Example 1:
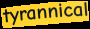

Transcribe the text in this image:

tyrannical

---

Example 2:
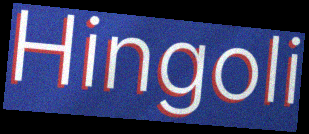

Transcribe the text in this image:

Hingoli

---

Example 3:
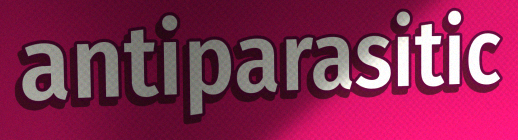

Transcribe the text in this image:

antiparasitic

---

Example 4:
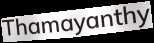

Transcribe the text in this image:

Thamayanthy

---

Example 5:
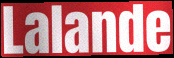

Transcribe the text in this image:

Lalande